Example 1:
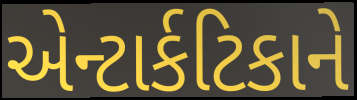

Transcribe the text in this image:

એન્ટાર્કટિકાને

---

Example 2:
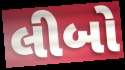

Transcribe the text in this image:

લીબો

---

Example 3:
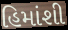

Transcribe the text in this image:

હિમાંશી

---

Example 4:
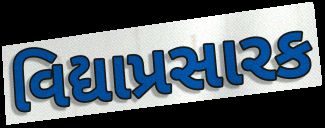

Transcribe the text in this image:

વિદ્યાપ્રસારક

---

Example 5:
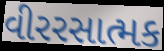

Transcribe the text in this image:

વીરરસાત્મક